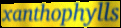
xanthophylls